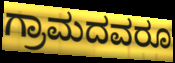
ಗ್ರಾಮದವರೂ